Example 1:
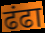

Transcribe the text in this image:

ढंढा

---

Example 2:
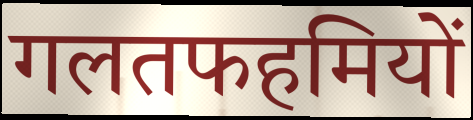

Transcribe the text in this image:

गलतफहमियों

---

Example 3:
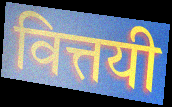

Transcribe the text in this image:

वित्तयी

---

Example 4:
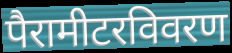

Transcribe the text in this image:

पैरामीटरविवरण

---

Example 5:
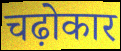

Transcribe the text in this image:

चढ़ोकार